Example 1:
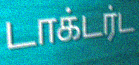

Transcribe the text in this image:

டாக்டர்ட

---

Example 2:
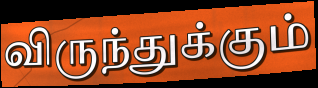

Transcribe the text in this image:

விருந்துக்கும்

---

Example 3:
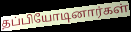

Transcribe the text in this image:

தப்பியோடினார்கள்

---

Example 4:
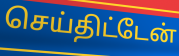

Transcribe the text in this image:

செய்திட்டேன்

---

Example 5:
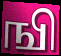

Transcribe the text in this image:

ஙி